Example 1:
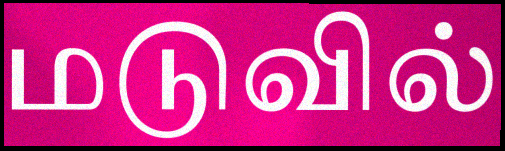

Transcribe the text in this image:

மடுவில்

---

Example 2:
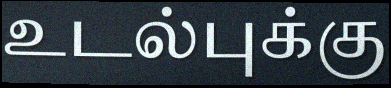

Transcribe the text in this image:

உடல்புக்கு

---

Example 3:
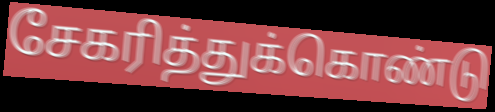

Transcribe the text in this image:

சேகரித்துக்கொண்டு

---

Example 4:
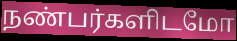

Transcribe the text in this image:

நண்பர்களிடமோ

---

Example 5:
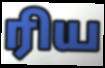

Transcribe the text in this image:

ரிய